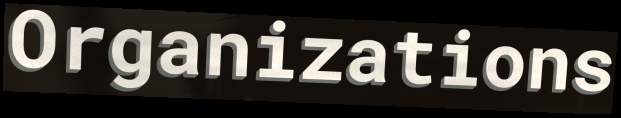
Organizations